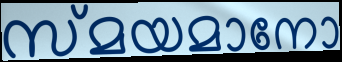
സ്മയമാനോ